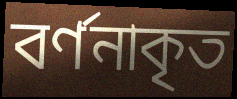
বর্ণনাকৃত